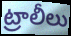
ట్రాలీలు